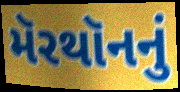
મૅરથૉનનું